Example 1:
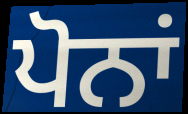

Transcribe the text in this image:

ਪੋਨਾਂ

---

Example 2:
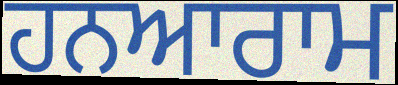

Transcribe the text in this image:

ਹਨਆਰਾਮ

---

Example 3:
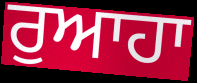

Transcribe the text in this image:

ਰੁਆਹਾ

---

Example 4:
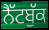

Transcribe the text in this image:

ਨੈੱਟਬੁੱਕ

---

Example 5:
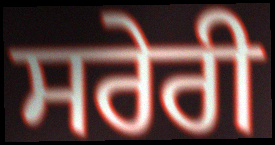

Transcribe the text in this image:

ਸਰੇਰੀ